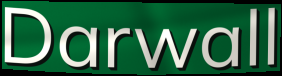
Darwall